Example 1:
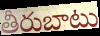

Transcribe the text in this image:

తీరుబాటు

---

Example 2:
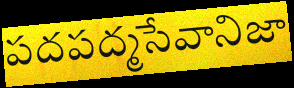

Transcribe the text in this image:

పదపద్మసేవానిజా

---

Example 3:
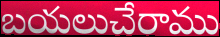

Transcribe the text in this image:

బయలుచేరాము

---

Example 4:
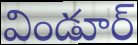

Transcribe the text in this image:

విండూర్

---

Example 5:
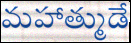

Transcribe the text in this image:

మహాత్ముడే